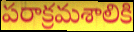
పరాక్రమశాలికి